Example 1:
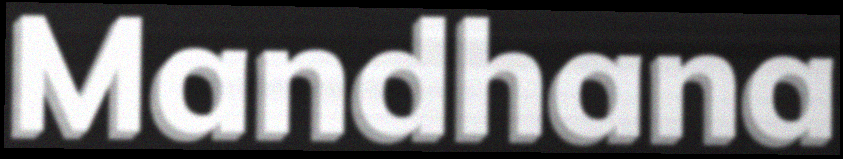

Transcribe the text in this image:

Mandhana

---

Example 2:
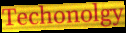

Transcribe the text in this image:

Techonolgy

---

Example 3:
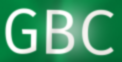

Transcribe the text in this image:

GBC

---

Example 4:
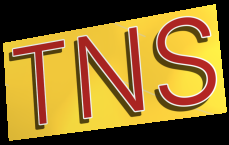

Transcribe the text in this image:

TNS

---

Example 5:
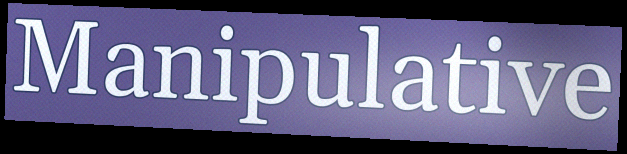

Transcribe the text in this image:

Manipulative